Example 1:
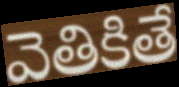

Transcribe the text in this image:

వెతికితే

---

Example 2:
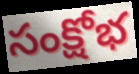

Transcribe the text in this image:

సంక్షోభ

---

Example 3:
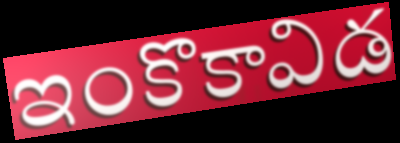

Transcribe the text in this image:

ఇంకొకావిడ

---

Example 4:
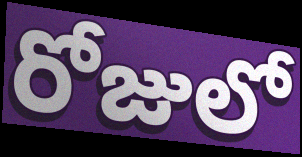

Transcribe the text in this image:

రోజులో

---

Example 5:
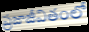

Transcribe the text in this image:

ప్రజాజీవితంలో